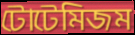
টোটেমিজম